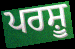
ਪਰਸ਼ੂ